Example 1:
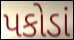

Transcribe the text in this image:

પકોડાં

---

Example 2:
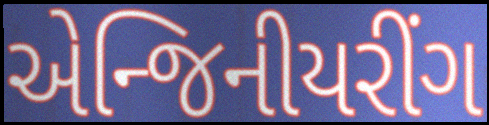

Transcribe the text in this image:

એન્જિનીયરીંગ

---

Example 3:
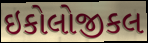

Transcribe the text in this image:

ઇકોલોજીકલ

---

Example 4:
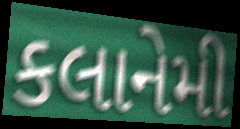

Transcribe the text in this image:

કલાનેમી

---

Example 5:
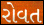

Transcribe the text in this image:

રોવત